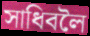
সাধিবলৈ